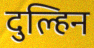
दुल्हिन